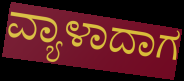
ವ್ಯಾಳಾದಾಗ